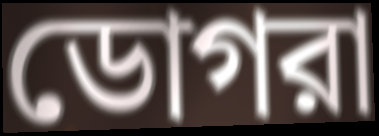
ডোগরা